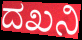
ದಖನಿ